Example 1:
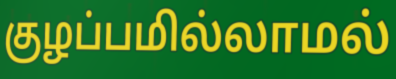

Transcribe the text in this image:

குழப்பமில்லாமல்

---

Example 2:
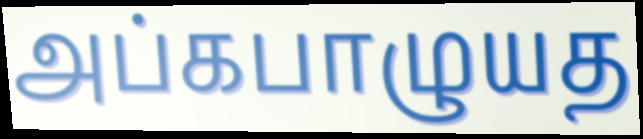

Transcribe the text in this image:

அப்கபாழுயத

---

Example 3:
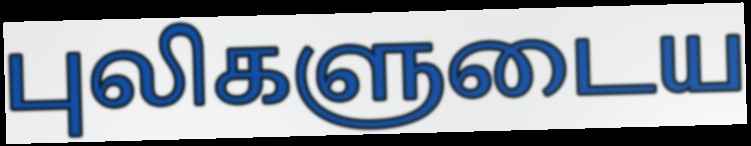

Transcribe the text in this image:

புலிகளுடைய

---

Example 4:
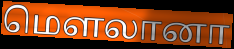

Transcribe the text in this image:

மௌலானா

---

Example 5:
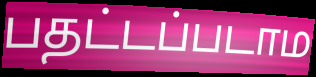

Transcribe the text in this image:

பதட்டப்படாம